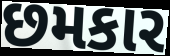
છમકાર